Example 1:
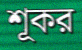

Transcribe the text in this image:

শূকর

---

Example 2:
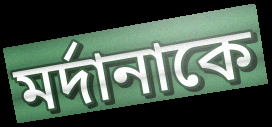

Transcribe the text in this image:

মর্দানাকে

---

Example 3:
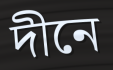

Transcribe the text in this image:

দীনে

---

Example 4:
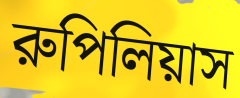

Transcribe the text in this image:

রুপিলিয়াস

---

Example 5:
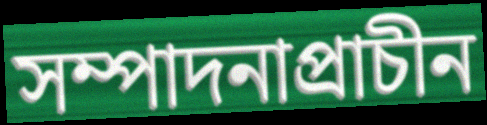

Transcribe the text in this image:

সম্পাদনাপ্রাচীন